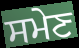
ਸਮੇਣ